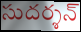
సుదర్శన్